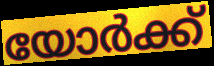
യോർക്ക്